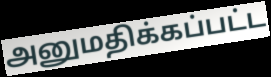
அனுமதிக்கப்பட்ட